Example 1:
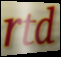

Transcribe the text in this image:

rtd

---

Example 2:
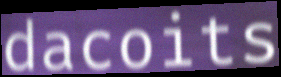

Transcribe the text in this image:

dacoits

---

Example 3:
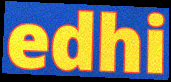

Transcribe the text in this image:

edhi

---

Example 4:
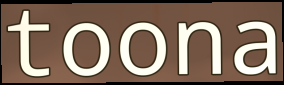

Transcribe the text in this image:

toona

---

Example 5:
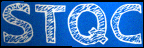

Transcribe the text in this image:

STQC